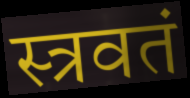
स्त्रवतं